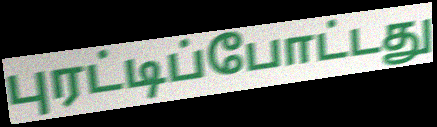
புரட்டிப்போட்டது